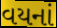
વયનાં